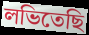
লভিতেছি